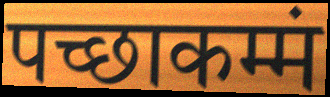
पच्छाकम्मं